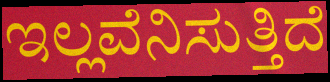
ಇಲ್ಲವೆನಿಸುತ್ತಿದೆ